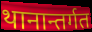
थानान्तर्गत